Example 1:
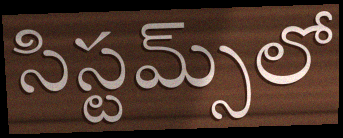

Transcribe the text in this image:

సిస్టమ్స్‌లో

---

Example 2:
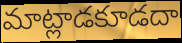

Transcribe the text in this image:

మాట్లాడకూడదా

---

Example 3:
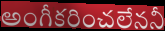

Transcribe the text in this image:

అంగీకరించలేననీ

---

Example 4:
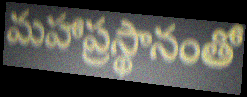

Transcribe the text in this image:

మహాప్రస్థానంతో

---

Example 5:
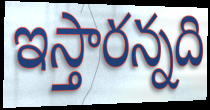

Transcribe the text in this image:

ఇస్తారన్నది